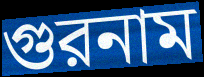
গুরনাম